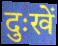
दुःखें